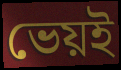
ভেয়ই